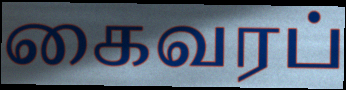
கைவரப்